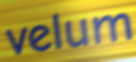
velum